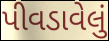
પીવડાવેલું